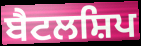
ਬੈਟਲਸ਼ਿਪ